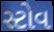
સ્ટોવ